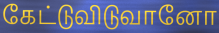
கேட்டுவிடுவானோ